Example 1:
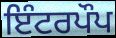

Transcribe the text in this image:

ਇੰਟਰਪੌਪ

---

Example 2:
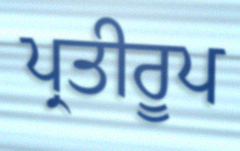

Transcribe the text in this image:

ਪ੍ਰਤੀਰੂਪ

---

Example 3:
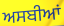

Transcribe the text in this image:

ਅਸਬੀਆਂ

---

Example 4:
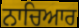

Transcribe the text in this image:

ਨਾਚਿਆਰ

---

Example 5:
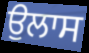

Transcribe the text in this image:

ਉਲਾਸ